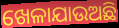
ଖେଳାଯାଉଅଛି